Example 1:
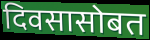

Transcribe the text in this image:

दिवसासोबत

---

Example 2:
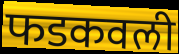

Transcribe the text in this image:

फडकवली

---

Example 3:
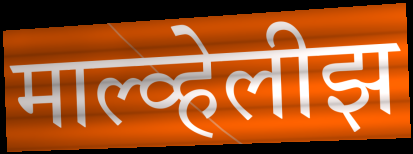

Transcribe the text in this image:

माल्व्हेलीझ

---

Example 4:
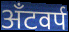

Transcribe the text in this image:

अँटवर्प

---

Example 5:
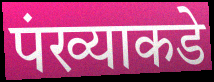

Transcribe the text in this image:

पंख्याकडे